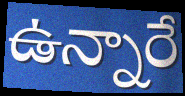
ఉన్నారే